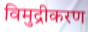
विमुद्रीकरण